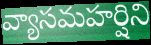
వ్యాసమహర్షిని